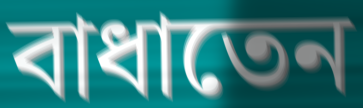
বাধাতেন